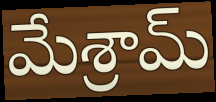
మేశ్రామ్